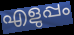
എളുപ്പം